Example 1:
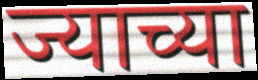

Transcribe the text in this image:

ज्याच्या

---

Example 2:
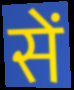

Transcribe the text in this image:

सें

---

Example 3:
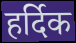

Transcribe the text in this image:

हर्दिक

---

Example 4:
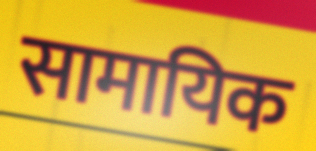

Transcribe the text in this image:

सामायिक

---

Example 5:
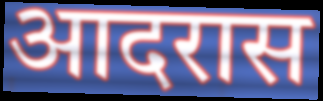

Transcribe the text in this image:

आदरास